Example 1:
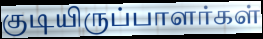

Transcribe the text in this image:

குடியிருப்பாளர்கள்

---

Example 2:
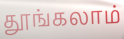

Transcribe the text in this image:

தூங்கலாம்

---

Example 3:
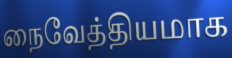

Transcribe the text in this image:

நைவேத்தியமாக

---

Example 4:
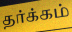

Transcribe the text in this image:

தர்க்கம்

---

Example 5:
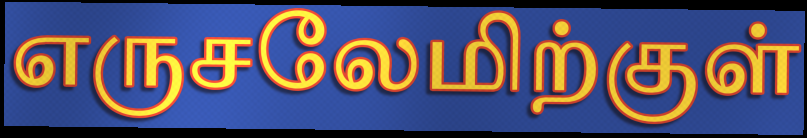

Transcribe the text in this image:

எருசலேமிற்குள்